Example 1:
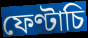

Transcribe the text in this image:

ফেণ্টাচি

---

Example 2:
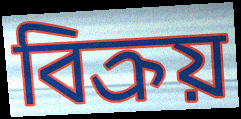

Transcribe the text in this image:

বিক্ৰয়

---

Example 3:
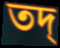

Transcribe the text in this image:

তদ্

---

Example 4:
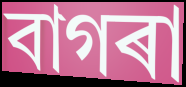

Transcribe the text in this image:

বাগৰা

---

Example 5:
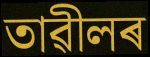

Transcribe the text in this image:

তাৱীলৰ